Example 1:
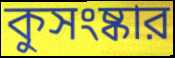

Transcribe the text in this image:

কুসংষ্কার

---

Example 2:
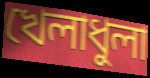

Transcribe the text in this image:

খেলাধুলা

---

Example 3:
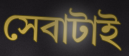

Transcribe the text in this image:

সেবাটাই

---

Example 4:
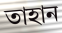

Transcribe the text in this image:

তাহান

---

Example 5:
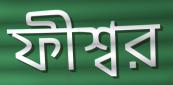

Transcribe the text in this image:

ফীশ্বর